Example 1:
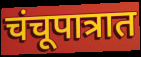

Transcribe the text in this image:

चंचूपात्रात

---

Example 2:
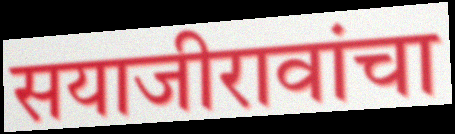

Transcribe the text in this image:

सयाजीरावांचा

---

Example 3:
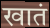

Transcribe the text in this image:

खातं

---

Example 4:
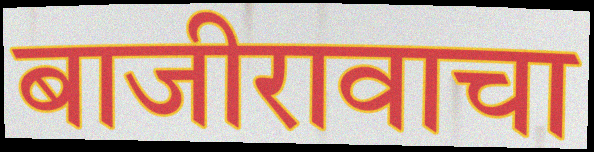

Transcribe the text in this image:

बाजीरावाचा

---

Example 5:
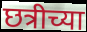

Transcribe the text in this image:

छत्रीच्या